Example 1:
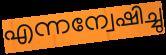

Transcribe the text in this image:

എന്നന്വേഷിച്ചു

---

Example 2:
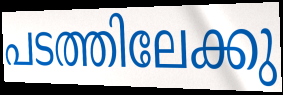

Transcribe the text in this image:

പടത്തിലേക്കു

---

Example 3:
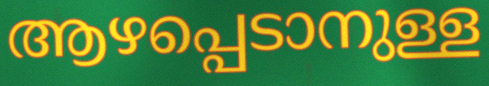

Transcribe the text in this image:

ആഴപ്പെടാനുള്ള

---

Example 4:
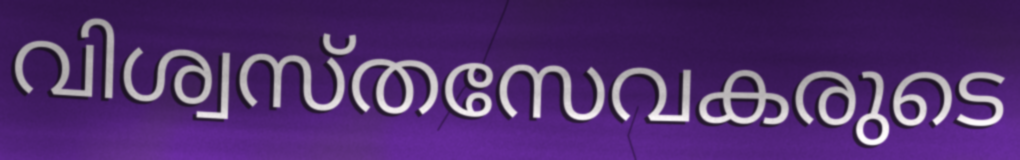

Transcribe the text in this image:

വിശ്വസ്തസേവകരുടെ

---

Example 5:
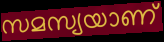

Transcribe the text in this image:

സമസ്യയാണ്